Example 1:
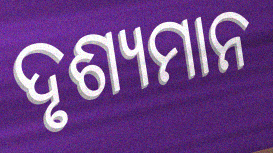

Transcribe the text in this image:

ଦୃଶ୍ୟମାନ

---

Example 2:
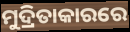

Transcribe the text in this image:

ମୁଦ୍ରିତାକାରରେ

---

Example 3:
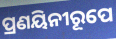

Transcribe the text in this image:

ପ୍ରଣୟିନୀରୂପେ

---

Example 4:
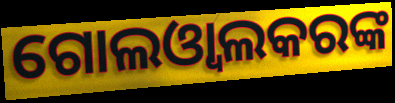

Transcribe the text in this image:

ଗୋଲଓ୍ଵାଲକରଙ୍କ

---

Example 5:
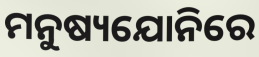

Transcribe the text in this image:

ମନୁଷ୍ୟଯୋନିରେ